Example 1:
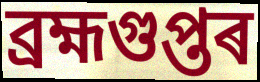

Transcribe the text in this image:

ব্ৰহ্মগুপ্তৰ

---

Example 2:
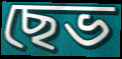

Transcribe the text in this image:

ছেভ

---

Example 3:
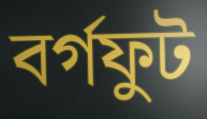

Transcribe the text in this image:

বৰ্গফুট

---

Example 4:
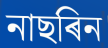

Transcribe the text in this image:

নাছৰিন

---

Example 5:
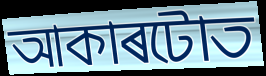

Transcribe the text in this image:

আকাৰটোত